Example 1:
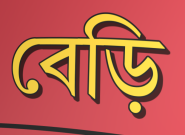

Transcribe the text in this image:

বেড়ি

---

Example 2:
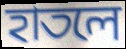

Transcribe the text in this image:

হাতলে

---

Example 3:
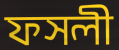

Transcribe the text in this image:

ফসলী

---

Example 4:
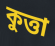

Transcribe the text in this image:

কুত্তা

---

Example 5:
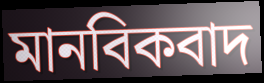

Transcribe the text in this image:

মানবিকবাদ